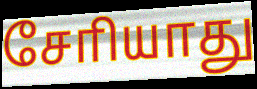
சேரியாது